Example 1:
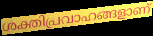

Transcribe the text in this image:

ശക്തിപ്രവാഹങ്ങളാണ്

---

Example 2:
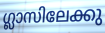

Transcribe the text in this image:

ഗ്ലാസിലേക്കു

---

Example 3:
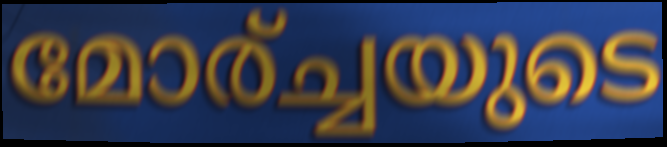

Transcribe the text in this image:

മോര്ച്ചയുടെ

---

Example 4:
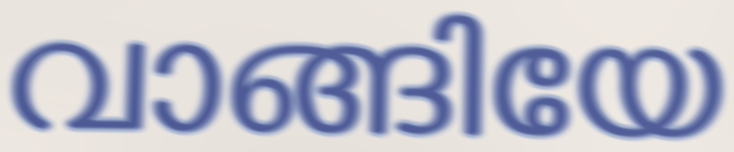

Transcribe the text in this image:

വാങ്ങിയേ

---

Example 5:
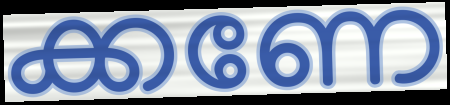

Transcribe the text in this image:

ക്കണേ